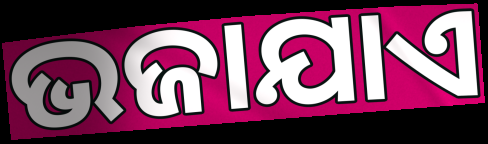
ଭଜାଯାଏ